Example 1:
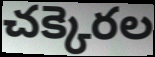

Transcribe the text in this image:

చక్కెరల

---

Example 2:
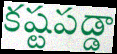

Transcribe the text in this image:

కష్టపడ్డా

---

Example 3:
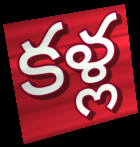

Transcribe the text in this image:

కళ్ల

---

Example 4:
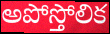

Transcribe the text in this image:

అపోస్తోలిక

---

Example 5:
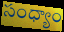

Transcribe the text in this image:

సంధ్యాం